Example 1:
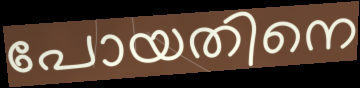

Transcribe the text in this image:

പോയതിനെ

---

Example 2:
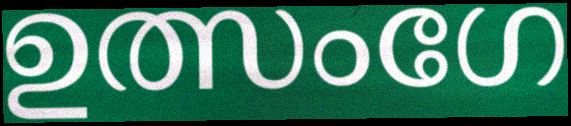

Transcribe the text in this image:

ഉത്സംഗേ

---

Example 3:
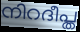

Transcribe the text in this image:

നിറദീപ്ത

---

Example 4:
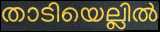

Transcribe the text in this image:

താടിയെല്ലിൽ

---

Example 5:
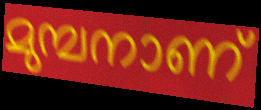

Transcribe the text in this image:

മുമ്പനാണ്